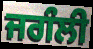
ਜਗੰਲੀ